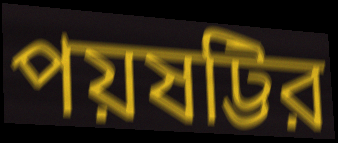
পয়ষট্টির